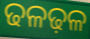
ଢଳଢ଼ଳ